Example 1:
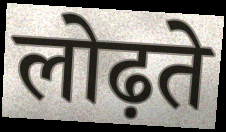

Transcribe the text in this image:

लोढ़ते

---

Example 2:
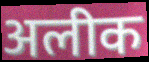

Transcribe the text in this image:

अलीक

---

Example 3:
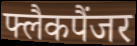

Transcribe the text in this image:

फ्लैकपैंजर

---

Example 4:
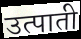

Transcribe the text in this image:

उत्पाती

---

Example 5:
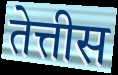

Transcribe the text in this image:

तेत्तीस